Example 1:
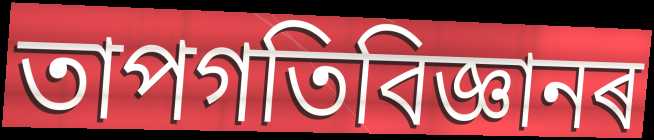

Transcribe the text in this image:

তাপগতিবিজ্ঞানৰ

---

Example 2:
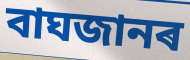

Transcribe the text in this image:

বাঘজানৰ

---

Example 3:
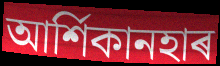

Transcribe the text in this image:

আৰ্শিকানহাৰ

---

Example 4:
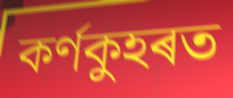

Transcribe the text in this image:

কৰ্ণকুহৰত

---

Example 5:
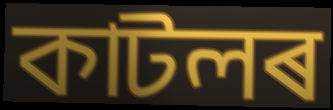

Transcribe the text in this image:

কাটলৰ